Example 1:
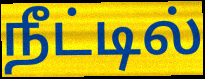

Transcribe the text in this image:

நீட்டில்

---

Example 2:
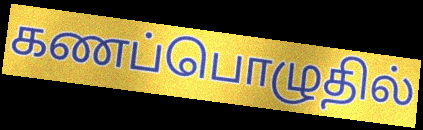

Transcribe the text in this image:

கணப்பொழுதில்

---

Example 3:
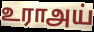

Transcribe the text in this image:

உராஅய்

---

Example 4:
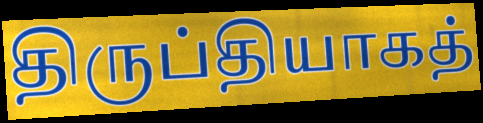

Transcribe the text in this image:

திருப்தியாகத்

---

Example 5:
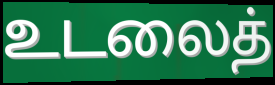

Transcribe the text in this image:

உடலைத்